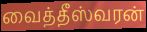
வைத்தீஸ்வரன்